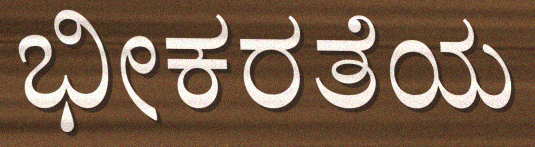
ಭೀಕರತೆಯ